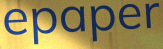
epaper